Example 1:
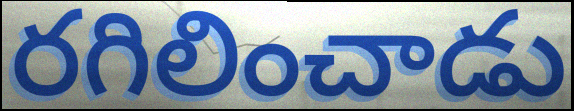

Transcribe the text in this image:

రగిలించాడు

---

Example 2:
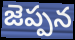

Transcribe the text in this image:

జెప్పన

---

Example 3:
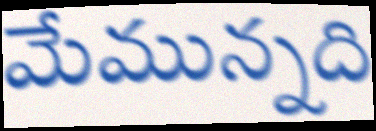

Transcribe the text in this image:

మేమున్నది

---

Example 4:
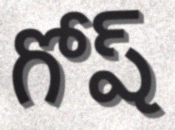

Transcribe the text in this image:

గోష్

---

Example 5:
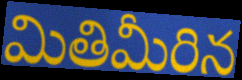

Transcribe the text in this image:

మితిమీరిన